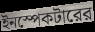
ইনস্পেকটারের